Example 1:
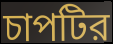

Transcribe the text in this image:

চাপটির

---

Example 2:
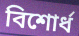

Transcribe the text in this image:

বিশোর্ধ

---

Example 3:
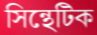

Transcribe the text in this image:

সিন্থেটিক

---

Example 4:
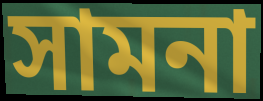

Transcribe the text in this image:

সামনা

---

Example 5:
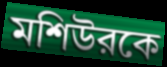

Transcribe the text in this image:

মশিউরকে